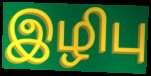
இழிபு